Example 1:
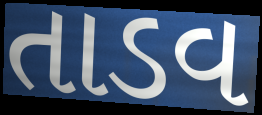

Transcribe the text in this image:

તાડવ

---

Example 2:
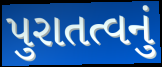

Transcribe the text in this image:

પુરાતત્વનું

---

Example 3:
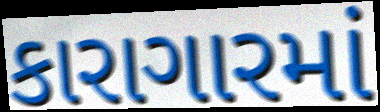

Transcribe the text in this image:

કારાગારમાં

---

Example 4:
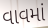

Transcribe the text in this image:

વાવમાં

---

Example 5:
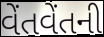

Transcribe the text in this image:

વેંતવેંતની